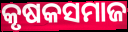
କୃଷକସମାଜ